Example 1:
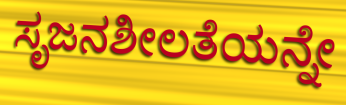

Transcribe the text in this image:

ಸೃಜನಶೀಲತೆಯನ್ನೇ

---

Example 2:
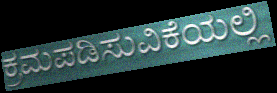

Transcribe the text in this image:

ಕ್ರಮಪಡಿಸುವಿಕೆಯಲ್ಲಿ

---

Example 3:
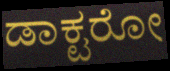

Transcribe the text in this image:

ಡಾಕ್ಟರೋ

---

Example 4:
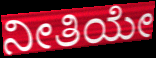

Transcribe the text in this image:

ನೀತಿಯೇ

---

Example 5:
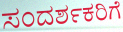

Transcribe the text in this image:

ಸಂದರ್ಶಕರಿಗೆ